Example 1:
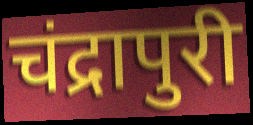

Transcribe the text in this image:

चंद्रापुरी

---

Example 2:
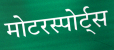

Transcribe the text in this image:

मोटरस्पोर्ट्स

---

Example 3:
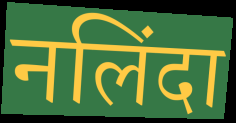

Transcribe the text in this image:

नलिंदा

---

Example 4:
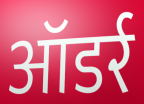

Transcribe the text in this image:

ऑडर्र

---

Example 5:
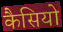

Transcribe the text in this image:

कैसियो